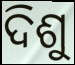
ଦିଶୁ